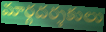
మార్గదర్శకులు